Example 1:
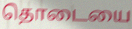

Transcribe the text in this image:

தொடையை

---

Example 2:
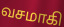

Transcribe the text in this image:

வசமாகி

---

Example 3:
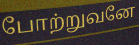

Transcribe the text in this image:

போற்றுவனே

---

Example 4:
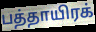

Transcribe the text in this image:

பத்தாயிரக்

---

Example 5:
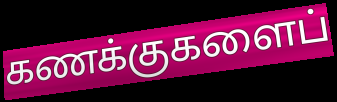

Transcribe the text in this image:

கணக்குகளைப்